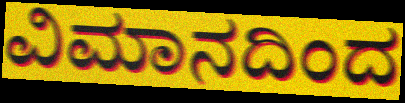
ವಿಮಾನದಿಂದ